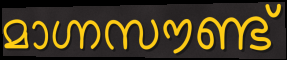
മാഗ്നസൗണ്ട്